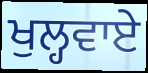
ਖੁਲ੍ਹਵਾਏ